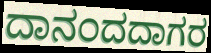
ದಾನಂದದಾಗರ